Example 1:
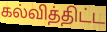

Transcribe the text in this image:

கல்வித்திட்ட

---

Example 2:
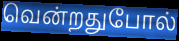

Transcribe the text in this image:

வென்றதுபோல்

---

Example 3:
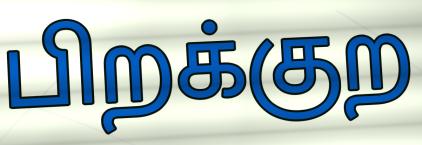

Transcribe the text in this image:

பிறக்குற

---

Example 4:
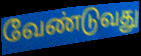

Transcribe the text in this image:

வேண்டுவது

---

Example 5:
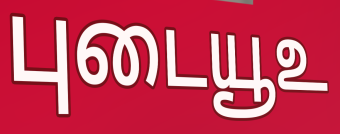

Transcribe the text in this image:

புடையூஉ